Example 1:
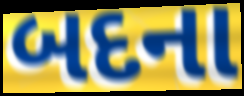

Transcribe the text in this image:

બદના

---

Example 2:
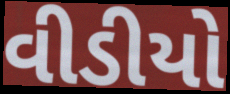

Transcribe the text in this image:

વીડીયો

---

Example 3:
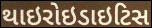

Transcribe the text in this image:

થાઇરોઇડાઇટિસ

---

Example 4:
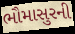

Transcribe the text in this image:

ભૌમાસુરની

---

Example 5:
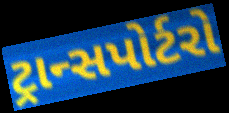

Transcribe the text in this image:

ટ્રાન્સપોર્ટરો